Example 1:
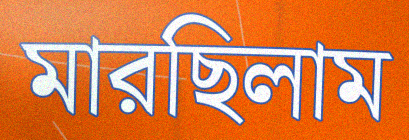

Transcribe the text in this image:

মারছিলাম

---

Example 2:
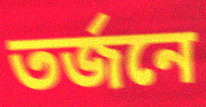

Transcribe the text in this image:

তর্জনে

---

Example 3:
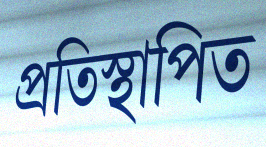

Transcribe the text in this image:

প্রতিস্থাপিত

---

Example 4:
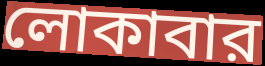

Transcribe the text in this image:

লোকাবার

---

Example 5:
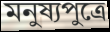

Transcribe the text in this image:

মনুষ্যপুত্রে